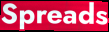
Spreads